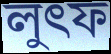
লুৎফ